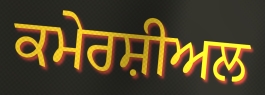
ਕਮੇਰਸ਼ੀਅਲ